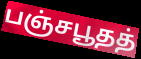
பஞ்சபூதத்